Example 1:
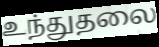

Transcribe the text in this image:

உந்துதலை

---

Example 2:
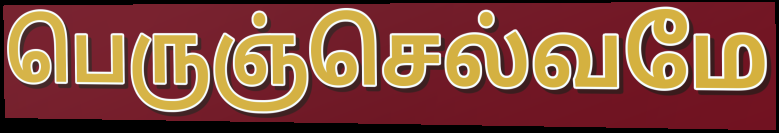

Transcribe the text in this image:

பெருஞ்செல்வமே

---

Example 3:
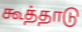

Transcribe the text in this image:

கூத்தாடு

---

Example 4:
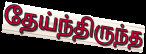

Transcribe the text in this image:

தேய்ந்திருந்த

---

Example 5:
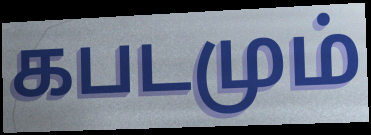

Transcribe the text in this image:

கபடமும்